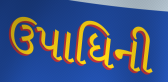
ઉપાધિની